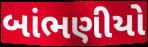
બાંભણીયો